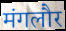
मंगलौर